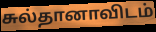
சுல்தானாவிடம்